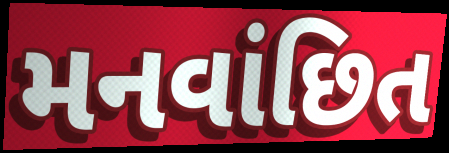
મનવાંછિત